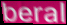
beral